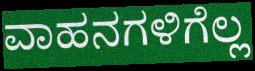
ವಾಹನಗಳಿಗೆಲ್ಲ